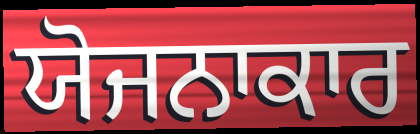
ਯੋਜਨਾਕਾਰ